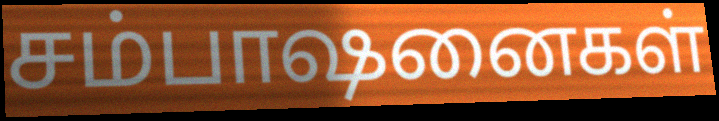
சம்பாஷனைகள்